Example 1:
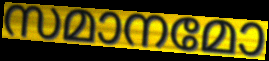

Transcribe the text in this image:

സമാനമോ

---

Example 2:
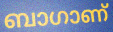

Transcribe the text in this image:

ബാഗാണ്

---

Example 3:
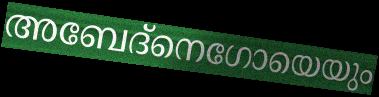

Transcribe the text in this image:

അബേദ്നെഗോയെയും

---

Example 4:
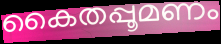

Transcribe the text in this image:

കൈതപ്പൂമണം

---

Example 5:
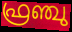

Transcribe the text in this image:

ഫ്രഞ്ചു